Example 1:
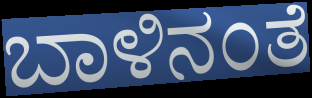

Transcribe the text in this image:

ಬಾಳಿನಂತೆ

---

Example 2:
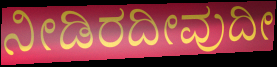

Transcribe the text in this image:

ನೀಡಿರದೀವುದೀ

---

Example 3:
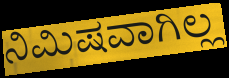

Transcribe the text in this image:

ನಿಮಿಷವಾಗಿಲ್ಲ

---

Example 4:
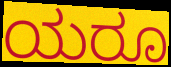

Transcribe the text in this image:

ಯರೂ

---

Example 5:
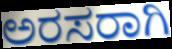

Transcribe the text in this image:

ಅರಸರಾಗಿ